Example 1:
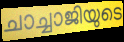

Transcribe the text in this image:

ചാച്ചാജിയുടെ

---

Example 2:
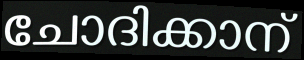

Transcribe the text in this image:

ചോദിക്കാന്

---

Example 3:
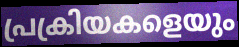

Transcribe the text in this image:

പ്രക്രിയകളെയും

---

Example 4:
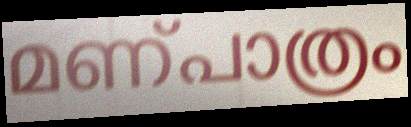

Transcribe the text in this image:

മണ്പാത്രം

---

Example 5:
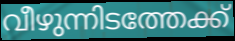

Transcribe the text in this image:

വീഴുന്നിടത്തേക്ക്